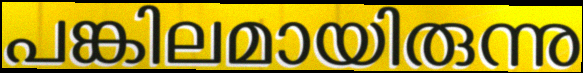
പങ്കിലമായിരുന്നു